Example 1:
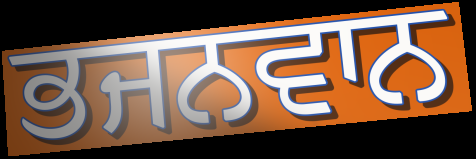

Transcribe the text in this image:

ਭਜਨਵਾਨ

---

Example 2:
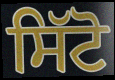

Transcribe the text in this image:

ਸਿੱਟੋ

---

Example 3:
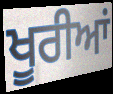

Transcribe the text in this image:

ਖੂਰੀਆਂ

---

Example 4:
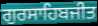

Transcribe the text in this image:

ਗੁਰਸਾਹਿਬਜੀਤ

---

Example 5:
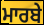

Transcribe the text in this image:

ਮਾਰਬੇ